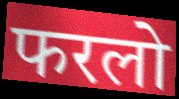
फरलो